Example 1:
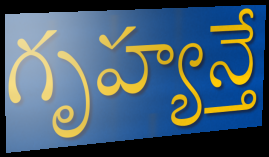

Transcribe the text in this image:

గృహ్యన్తే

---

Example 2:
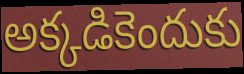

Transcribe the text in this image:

అక్కడికెందుకు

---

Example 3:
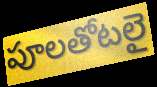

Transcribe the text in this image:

పూలతోటలై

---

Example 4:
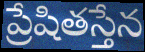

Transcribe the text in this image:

ప్రేషితస్తేన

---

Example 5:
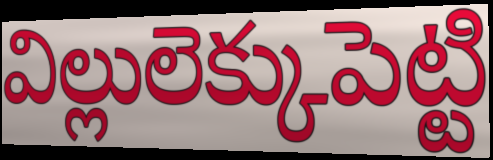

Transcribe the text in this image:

విల్లులెక్కుపెట్టి